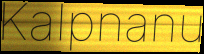
Kalpnanu